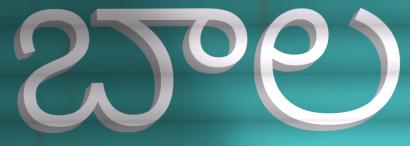
బాల